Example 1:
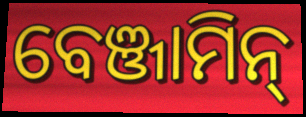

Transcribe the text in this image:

ବେଞ୍ଜାମିନ୍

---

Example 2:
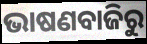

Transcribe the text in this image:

ଭାଷଣବାଜିରୁ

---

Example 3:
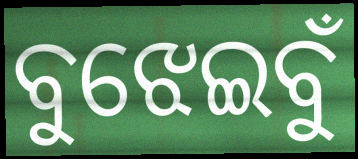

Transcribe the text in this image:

ବୁଝେଇବୁଁ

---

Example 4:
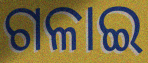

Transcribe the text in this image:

ଗଳାଇ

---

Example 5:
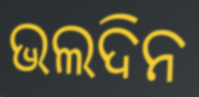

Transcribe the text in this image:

ଭଲଦିନ